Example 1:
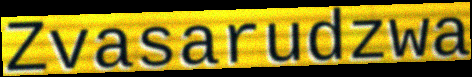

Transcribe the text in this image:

Zvasarudzwa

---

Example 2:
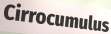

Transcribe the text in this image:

Cirrocumulus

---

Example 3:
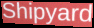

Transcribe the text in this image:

Shipyard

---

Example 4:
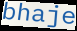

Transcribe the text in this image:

bhaje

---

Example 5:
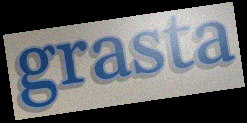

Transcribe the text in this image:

grasta